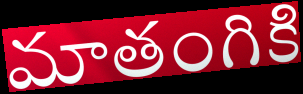
మాతంగికి